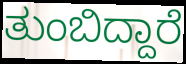
ತುಂಬಿದ್ದಾರೆ